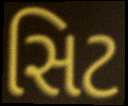
સિટ